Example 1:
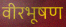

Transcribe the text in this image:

वीरभूषण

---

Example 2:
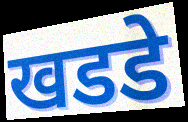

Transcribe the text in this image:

खडडे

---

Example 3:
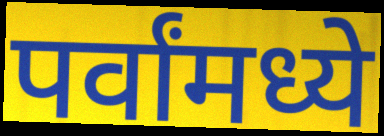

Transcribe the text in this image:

पर्वांमध्ये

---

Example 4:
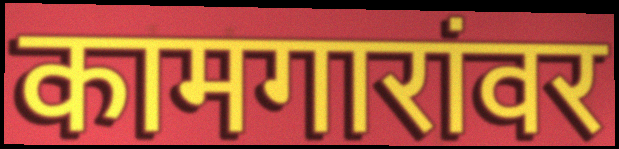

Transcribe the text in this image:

कामगारांवर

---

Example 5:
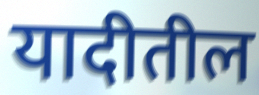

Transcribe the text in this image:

यादीतील